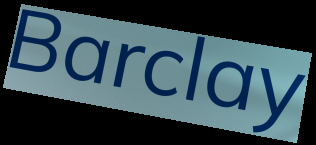
Barclay